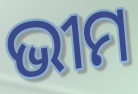
ଭୀମ